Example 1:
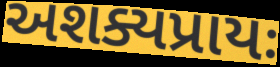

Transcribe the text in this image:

અશક્યપ્રાયઃ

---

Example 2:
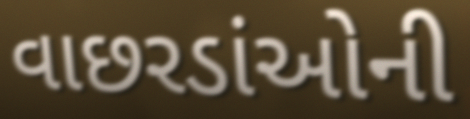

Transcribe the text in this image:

વાછરડાંઓની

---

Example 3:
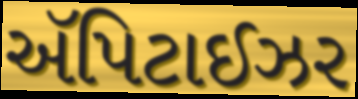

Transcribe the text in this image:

ઍપિટાઈઝર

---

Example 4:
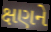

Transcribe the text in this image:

ક્ષણને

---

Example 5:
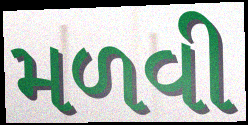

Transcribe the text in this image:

મળવી